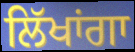
ਲਿੱਖਾਂਗਾ